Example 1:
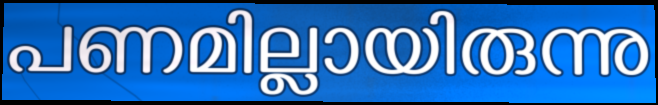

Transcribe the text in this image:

പണമില്ലായിരുന്നു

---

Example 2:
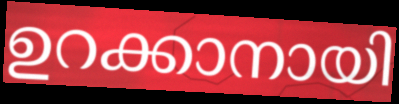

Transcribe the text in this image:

ഉറക്കാനായി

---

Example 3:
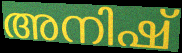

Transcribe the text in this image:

അനിഷ്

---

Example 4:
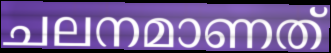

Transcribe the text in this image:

ചലനമാണത്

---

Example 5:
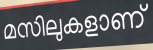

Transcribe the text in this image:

മസിലുകളാണ്